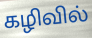
கழிவில்